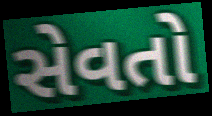
સેવતો